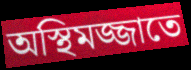
অস্থিমজ্জাতে